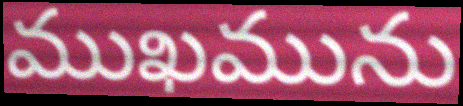
ముఖమును